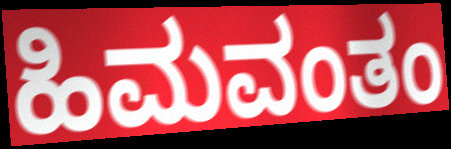
ಹಿಮವಂತಂ